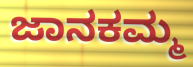
ಜಾನಕಮ್ಮ